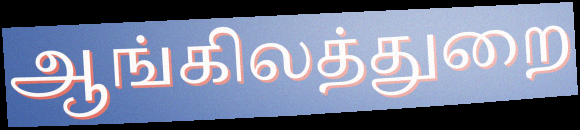
ஆங்கிலத்துறை